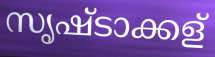
സൃഷ്ടാക്കള്